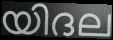
യിദല